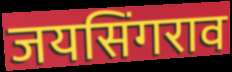
जयसिंगराव